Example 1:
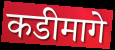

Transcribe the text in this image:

कडीमागे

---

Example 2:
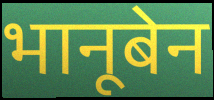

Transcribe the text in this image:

भानूबेन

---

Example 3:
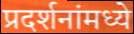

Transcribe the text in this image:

प्रदर्शनांमध्ये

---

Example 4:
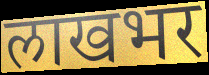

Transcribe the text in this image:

लाखभर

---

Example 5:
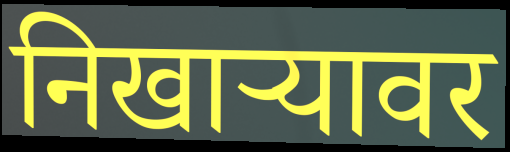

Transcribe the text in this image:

निखार्‍यावर